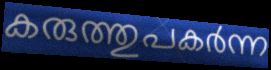
കരുത്തുപകർന്ന